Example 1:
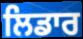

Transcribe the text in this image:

ਲਿਡਾਰ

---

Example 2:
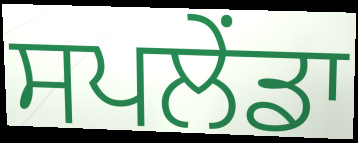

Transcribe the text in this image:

ਸਪਲੇਂਡਾ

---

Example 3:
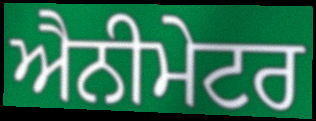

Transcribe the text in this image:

ਐਨੀਮੇਟਰ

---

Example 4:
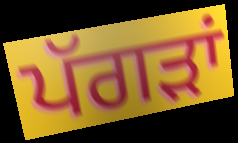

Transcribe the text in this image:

ਪੱਗੜਾਂ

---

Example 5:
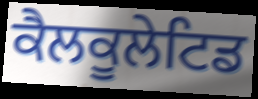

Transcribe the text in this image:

ਕੈਲਕੂਲੇਟਿਡ